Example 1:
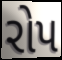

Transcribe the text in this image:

રોપ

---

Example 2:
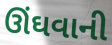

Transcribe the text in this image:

ઊંઘવાની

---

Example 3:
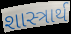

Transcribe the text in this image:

શાસ્ત્રાર્થ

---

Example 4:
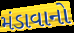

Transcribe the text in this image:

મંડાવાનો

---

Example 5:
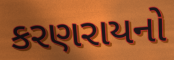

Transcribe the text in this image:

કરણરાયનો